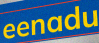
eenadu